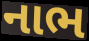
નાભ